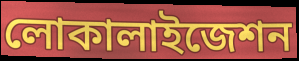
লোকালাইজেশন